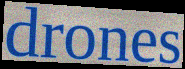
drones